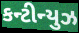
કન્ટીન્યુઝ